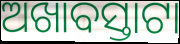
ଅଖାବସ୍ତାଟା